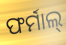
ଫର୍ମାଲ୍